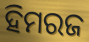
ହିମରଜ